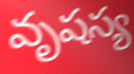
వృషస్య